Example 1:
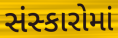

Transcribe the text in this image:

સંસ્કારોમાં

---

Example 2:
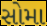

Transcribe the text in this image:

સોમા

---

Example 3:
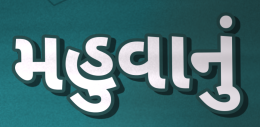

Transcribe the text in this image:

મહુવાનું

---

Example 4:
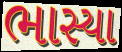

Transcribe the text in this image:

ભાસ્યા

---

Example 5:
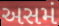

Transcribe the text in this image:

અસમં